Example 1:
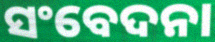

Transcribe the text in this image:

ସଂବେଦନା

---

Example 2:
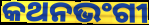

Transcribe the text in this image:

କଥନଭଂଗୀ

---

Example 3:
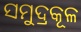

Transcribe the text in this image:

ସମୁଦ୍ରକୂଳ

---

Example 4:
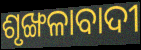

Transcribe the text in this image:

ଶୃଙ୍ଖଳାବାଦୀ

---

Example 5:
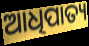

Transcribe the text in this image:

ଆଧିପାତ୍ୟ